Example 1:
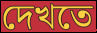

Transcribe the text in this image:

দেখতে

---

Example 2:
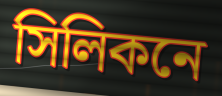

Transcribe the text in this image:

সিলিকনে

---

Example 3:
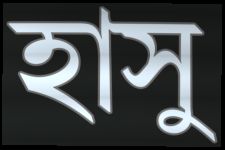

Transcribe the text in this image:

হাসু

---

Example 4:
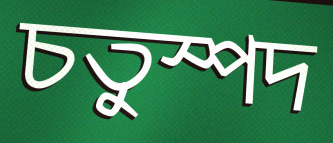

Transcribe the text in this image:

চতুস্পদ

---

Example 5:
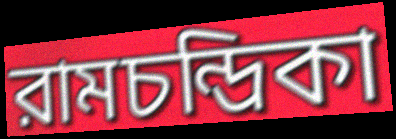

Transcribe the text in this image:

রামচন্দ্রিকা